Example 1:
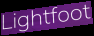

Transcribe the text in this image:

Lightfoot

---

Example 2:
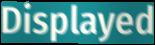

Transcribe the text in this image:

Displayed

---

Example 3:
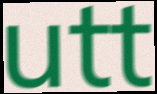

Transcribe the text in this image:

utt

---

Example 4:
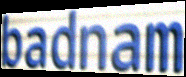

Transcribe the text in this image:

badnam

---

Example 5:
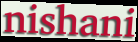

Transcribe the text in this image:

nishani